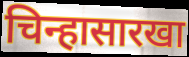
चिन्हासारखा